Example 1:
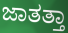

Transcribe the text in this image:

ಜಾತತ್ತಾ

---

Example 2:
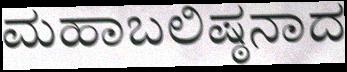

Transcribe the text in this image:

ಮಹಾಬಲಿಷ್ಠನಾದ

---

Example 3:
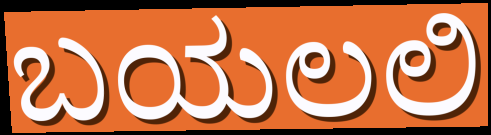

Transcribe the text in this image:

ಬಯಲಲಿ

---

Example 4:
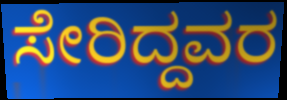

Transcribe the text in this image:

ಸೇರಿದ್ದವರ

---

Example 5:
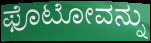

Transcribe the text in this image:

ಫೊಟೋವನ್ನು